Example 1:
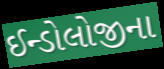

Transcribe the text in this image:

ઈન્ડોલોજીના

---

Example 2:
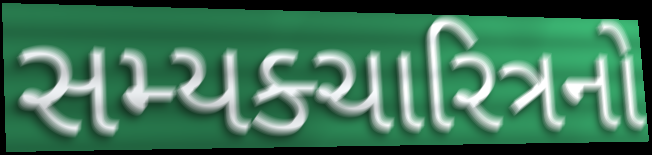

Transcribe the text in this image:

સમ્યક્ચારિત્રનો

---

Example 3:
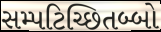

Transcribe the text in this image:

સમ્પટિચ્છિતબ્બો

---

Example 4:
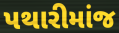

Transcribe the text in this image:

પથારીમાંજ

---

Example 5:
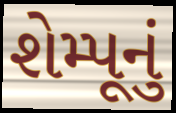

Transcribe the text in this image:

શેમ્પૂનું